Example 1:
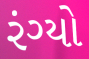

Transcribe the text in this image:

રંગ્યો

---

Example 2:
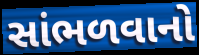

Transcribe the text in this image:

સાંભળવાનો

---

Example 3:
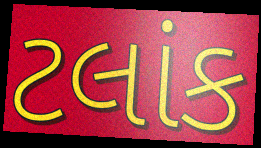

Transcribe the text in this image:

ટલાંક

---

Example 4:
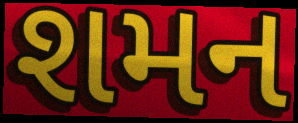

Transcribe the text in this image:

શમન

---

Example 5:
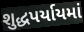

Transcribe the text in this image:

શુદ્ધપર્યાયમાં